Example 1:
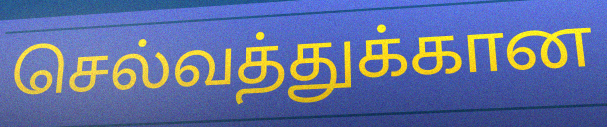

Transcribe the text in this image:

செல்வத்துக்கான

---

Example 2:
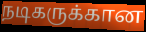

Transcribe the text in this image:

நடிகருக்கான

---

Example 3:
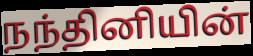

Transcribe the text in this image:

நந்தினியின்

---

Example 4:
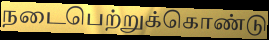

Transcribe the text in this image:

நடைபெற்றுக்கொண்டு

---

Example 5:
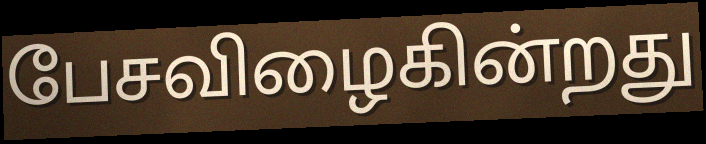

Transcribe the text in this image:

பேசவிழைகின்றது